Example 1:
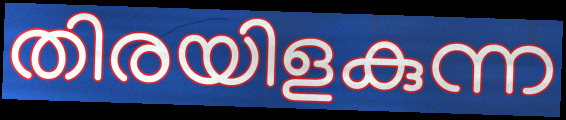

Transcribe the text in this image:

തിരയിളകുന്ന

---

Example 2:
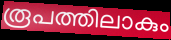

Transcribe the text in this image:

രൂപത്തിലാകും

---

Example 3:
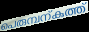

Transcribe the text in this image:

പെരുമ്പന്കുത്ത്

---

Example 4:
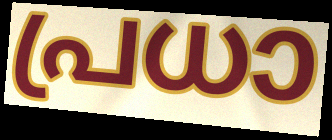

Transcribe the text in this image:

പ്രധാ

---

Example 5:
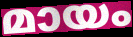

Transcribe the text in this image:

മായം